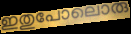
ഇതുപോലൊരു